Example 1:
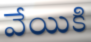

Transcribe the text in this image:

వేయికి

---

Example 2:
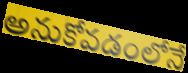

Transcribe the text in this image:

అనుకోవడంలోనే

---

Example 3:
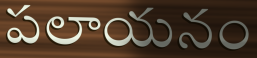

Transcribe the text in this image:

పలాయనం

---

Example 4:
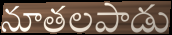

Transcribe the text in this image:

నూతలపాడు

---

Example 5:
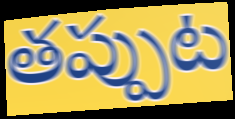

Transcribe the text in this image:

తప్పుట